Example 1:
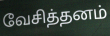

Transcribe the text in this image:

வேசித்தனம்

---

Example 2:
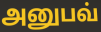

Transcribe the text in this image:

அனுபவ்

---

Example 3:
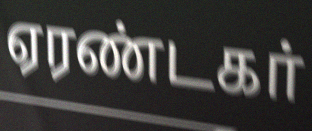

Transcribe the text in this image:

ஏரண்டகர்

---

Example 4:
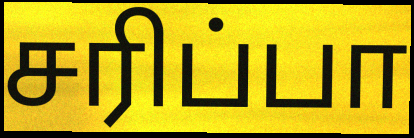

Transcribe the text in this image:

சரிப்பா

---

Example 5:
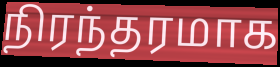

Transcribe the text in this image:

நிரந்தரமாக